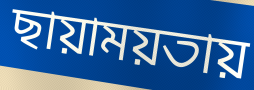
ছায়াময়তায়